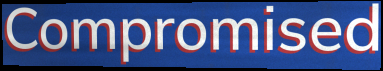
Compromised